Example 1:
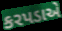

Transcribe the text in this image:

કરપડાએ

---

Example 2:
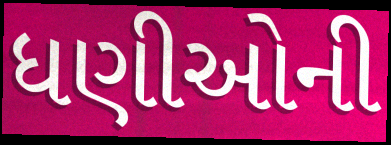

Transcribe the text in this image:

ધણીઓની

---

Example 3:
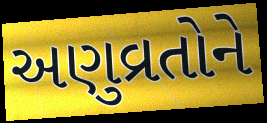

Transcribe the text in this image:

અણુવ્રતોને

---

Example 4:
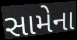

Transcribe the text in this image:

સામેના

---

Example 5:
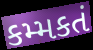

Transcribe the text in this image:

કમ્મકતં